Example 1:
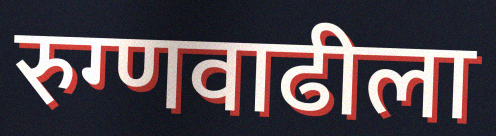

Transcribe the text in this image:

रुग्णवाढीला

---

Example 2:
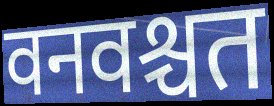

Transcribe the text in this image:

वनवश्चत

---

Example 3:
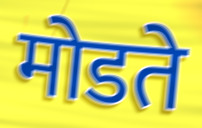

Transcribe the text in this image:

मोडते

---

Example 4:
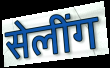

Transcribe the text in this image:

सेलींग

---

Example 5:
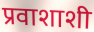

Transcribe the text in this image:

प्रवाशाशी